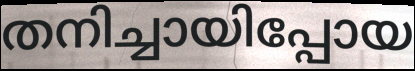
തനിച്ചായിപ്പോയ